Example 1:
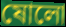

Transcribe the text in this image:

ষোলো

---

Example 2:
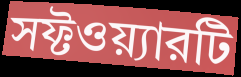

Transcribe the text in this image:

সফ্টওয়্যারটি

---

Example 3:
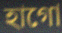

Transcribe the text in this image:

হাগো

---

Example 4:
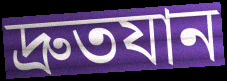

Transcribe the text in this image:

দ্রুতযান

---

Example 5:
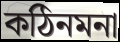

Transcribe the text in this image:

কঠিনমনা